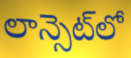
లాన్సెట్‌లో